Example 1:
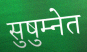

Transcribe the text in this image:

सुषुम्नेत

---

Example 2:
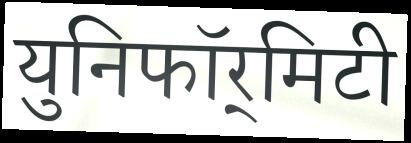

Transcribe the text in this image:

युनिफॉर्मिटी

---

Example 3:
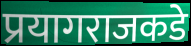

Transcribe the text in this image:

प्रयागराजकडे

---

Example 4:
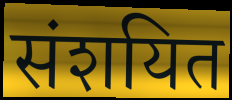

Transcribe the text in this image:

संशयित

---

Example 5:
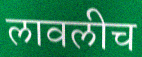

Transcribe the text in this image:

लावलीच